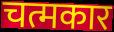
चत्मकार